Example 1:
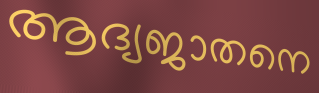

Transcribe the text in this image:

ആദ്യജാതനെ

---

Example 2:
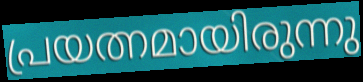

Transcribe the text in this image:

പ്രയത്നമായിരുന്നു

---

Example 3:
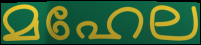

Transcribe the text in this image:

മഹേല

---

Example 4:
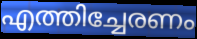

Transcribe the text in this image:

എത്തിച്ചേരണം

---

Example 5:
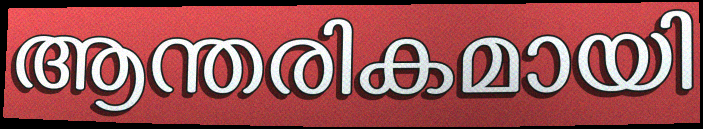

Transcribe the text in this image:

ആന്തരികമായി